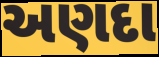
અણદા